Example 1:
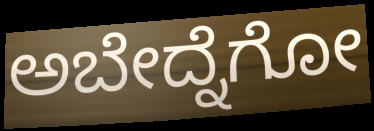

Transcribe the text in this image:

ಅಬೇದ್ನೆಗೋ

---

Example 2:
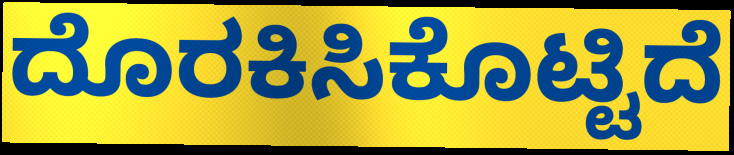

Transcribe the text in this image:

ದೊರಕಿಸಿಕೊಟ್ಟಿದೆ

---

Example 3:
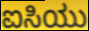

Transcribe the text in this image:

ಐಸಿಯು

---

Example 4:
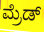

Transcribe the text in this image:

ಮ್ರೆಡ್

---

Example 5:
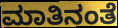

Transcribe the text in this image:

ಮಾತಿನಂತೆ